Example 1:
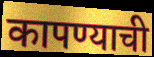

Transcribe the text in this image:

कापण्याची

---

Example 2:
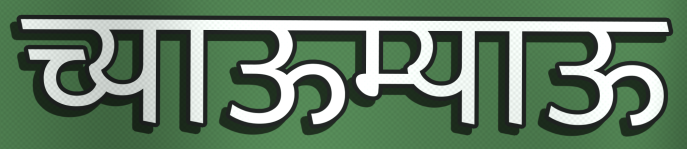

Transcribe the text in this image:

च्याऊम्याऊ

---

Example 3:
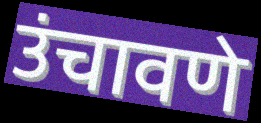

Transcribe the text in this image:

उंचावणे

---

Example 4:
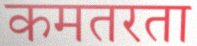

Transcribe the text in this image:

कमतरता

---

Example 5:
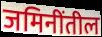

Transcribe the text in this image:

जमिनींतील